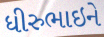
ધીરુભાઇને